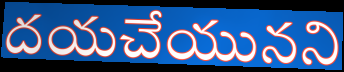
దయచేయునని